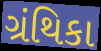
ગ્રંથિકા